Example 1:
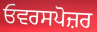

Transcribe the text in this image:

ਓਵਰਸਪੋਜ਼ਰ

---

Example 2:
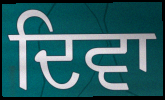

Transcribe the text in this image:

ਦਿਵਾ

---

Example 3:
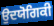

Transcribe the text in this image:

ਉਦਯੋਗਿਕੀ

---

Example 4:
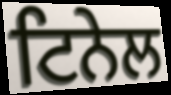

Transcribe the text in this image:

ਟਿਨੇਲ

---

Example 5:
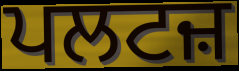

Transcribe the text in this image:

ਪਲਟਜ਼